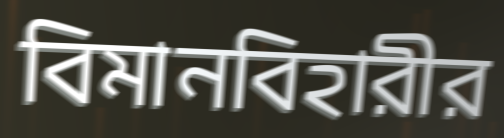
বিমানবিহারীর